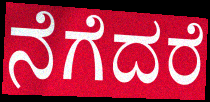
ನೆಗೆದರೆ